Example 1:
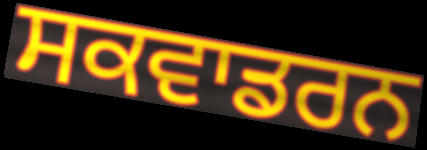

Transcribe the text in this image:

ਸਕਵਾਡਰਨ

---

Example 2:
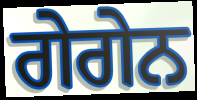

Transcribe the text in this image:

ਗੇਗੇਨ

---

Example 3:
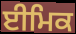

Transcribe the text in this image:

ਈਮਿਕ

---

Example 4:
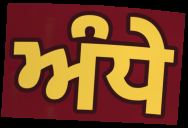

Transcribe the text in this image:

ਅੰਧੇ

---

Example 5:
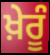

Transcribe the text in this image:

ਖ਼ੇਰੂੰ